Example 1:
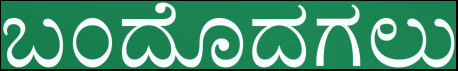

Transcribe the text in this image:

ಬಂದೊದಗಲು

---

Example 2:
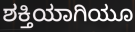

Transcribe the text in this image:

ಶಕ್ತಿಯಾಗಿಯೂ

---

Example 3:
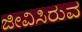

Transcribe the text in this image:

ಜೀವಿಸಿರುವ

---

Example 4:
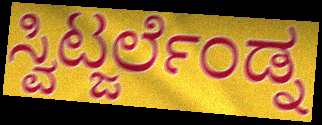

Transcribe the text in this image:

ಸ್ವಿಟ್ಜರ್ಲೆಂಡ್ನ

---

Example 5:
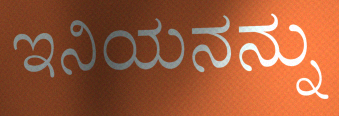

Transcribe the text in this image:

ಇನಿಯನನ್ನು